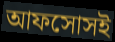
আফসোসই